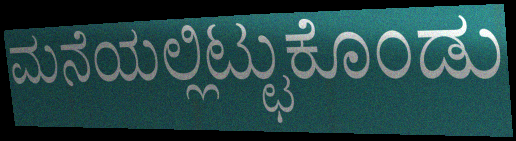
ಮನೆಯಲ್ಲಿಟ್ಟುಕೊಂಡು